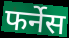
फर्नेस